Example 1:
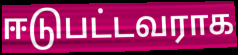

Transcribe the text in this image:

ஈடுபட்டவராக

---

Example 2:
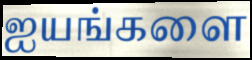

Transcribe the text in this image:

ஐயங்களை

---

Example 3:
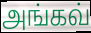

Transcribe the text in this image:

அங்கவ்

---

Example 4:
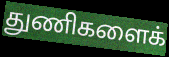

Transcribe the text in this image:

துணிகளைக்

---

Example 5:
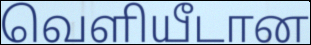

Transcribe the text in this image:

வெளியீடான